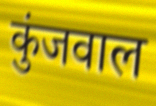
कुंजवाल